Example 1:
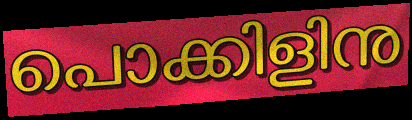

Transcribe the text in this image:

പൊക്കിളിനു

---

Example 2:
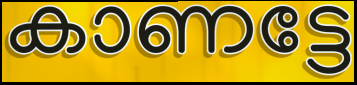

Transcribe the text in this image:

കാണട്ടേ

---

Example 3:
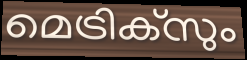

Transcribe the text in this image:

മെട്രിക്സും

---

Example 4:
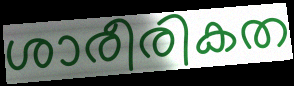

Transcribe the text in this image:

ശാരീരികത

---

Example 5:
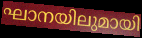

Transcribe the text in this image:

ഘാനയിലുമായി